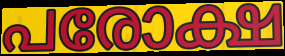
പരോക്ഷ